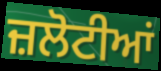
ਜ਼ਲੋਟੀਆਂ